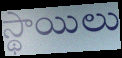
స్థాయిలు